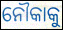
ନୌକାକୁ